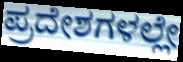
ಪ್ರದೇಶಗಳಲ್ಲೇ